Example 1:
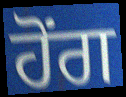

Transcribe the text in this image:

ਹੋਂਗ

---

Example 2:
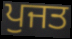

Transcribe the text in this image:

ਪੁਜਤ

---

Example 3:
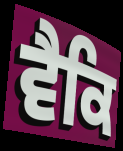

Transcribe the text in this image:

ਵੈਕਿ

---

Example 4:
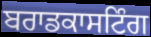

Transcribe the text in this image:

ਬਰਾਡਕਾਸਟਿੰਗ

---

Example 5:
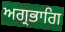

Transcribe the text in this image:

ਅਗ੍ਰਭਾਗਿ